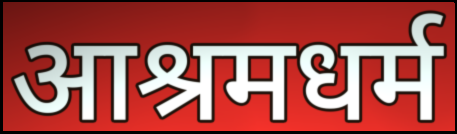
आश्रमधर्म